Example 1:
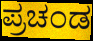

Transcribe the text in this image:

ಪ್ರಚಂಡ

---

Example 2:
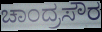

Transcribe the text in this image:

ಚಾಂದ್ರಸೌರ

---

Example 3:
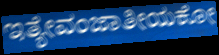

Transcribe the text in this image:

ಇತ್ಯೇವಂಜಾತೀಯಕೋ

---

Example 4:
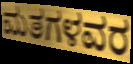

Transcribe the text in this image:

ಮತಗಳವರ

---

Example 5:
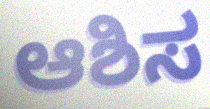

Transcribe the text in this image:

ಆಶಿಸ